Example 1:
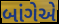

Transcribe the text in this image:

બાંગેએ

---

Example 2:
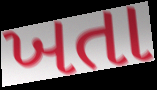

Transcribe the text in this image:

ખતા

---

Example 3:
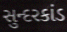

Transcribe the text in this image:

સુન્દરકાંડ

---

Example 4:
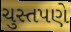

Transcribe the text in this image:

ચુસ્તપણે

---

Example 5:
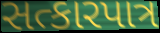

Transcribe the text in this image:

સત્કારપાત્ર